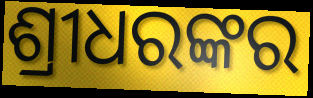
ଶ୍ରୀଧରଙ୍କର